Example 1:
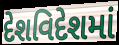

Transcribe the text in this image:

દેશવિદેશમાં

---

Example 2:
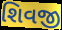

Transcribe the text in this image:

શિવજી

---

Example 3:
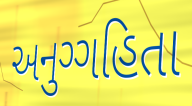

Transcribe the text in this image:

અનુગ્ગહિતા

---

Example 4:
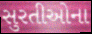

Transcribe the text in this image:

સુરતીઓના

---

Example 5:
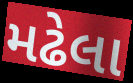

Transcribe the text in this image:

મઢેલા